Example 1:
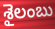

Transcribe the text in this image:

శైలంబు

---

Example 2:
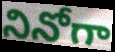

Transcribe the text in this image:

నినోగా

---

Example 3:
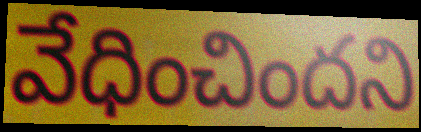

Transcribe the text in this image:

వేధించిందని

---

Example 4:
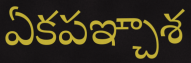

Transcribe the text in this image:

ఏకపఞ్చాశ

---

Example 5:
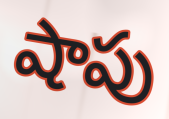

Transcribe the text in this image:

షాపు